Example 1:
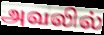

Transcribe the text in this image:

அவலில்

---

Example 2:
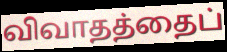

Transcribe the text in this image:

விவாதத்தைப்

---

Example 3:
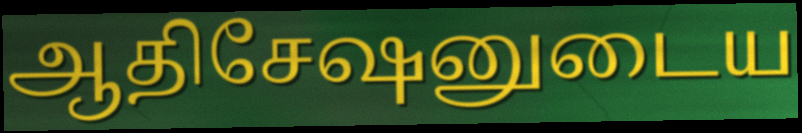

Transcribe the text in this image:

ஆதிசேஷனுடைய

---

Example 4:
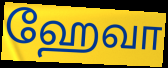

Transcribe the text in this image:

ஹேவா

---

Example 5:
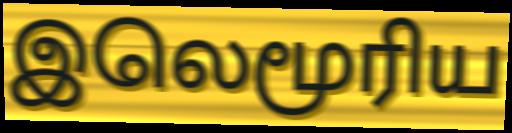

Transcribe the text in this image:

இலெமூரிய